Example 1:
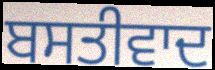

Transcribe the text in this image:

ਬਸਤੀਵਾਦ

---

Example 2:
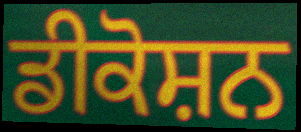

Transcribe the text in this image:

ਡੀਕੋਸ਼ਨ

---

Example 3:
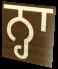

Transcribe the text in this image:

ਨ੍ਹਾ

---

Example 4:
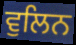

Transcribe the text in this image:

ਵੁਲਿਨ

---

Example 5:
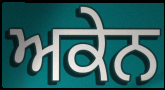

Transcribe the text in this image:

ਅਕੇਨ